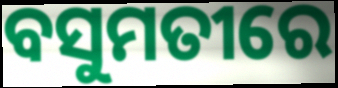
ବସୁମତୀରେ